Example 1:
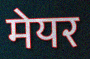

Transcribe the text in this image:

मेयर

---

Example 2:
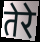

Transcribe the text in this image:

तेरे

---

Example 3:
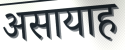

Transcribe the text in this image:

असायाह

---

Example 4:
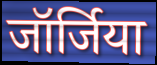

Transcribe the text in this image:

जॉर्जिया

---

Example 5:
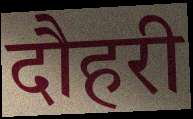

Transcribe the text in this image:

दौहरी